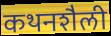
कथनशैली